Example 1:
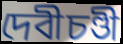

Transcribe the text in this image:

দেবীচণ্ডী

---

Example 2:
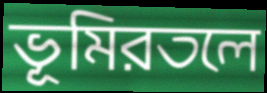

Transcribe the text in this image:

ভূমিরতলে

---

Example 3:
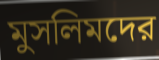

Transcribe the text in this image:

মুসলিমদের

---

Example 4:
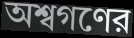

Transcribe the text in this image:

অশ্বগণের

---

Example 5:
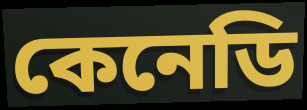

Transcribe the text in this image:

কেনেডি